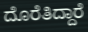
ದೊರೆತಿದ್ದಾರೆ